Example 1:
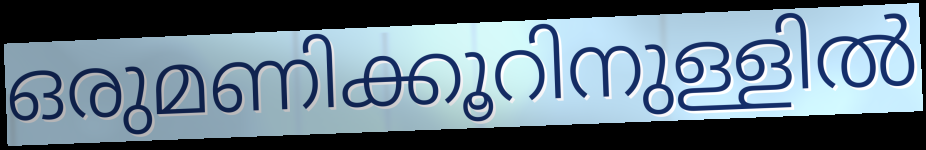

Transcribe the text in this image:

ഒരുമണിക്കൂറിനുള്ളിൽ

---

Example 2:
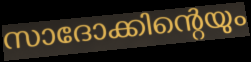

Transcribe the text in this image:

സാദോക്കിന്റെയും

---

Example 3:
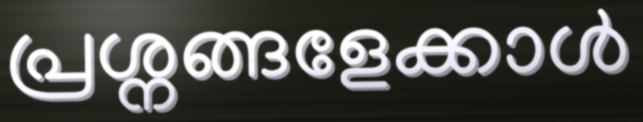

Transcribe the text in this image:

പ്രശ്നങ്ങളേക്കാൾ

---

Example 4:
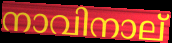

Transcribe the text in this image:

നാവിനാല്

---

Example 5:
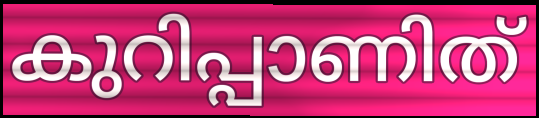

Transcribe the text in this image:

കുറിപ്പാണിത്